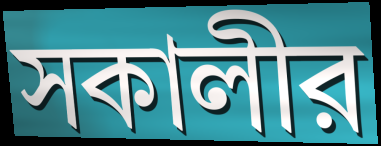
সকালীর